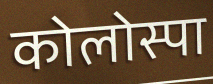
कोलोस्पा